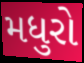
મધુરો